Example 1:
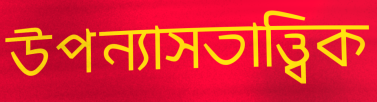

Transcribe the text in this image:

উপন্যাসতাত্ত্বিক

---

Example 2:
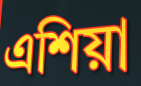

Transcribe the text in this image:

এশিয়া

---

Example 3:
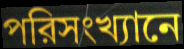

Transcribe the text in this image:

পরিসংখ্যানে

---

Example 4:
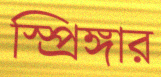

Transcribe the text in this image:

স্প্রিঙ্গার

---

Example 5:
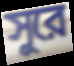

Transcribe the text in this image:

সুরে